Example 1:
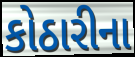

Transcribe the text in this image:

કોઠારીના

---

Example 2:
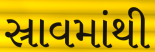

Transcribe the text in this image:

સ્રાવમાંથી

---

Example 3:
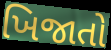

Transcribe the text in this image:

ખિજાતો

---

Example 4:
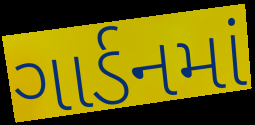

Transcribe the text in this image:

ગાર્ડનમાં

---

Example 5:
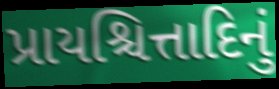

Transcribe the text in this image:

પ્રાયશ્ચિત્તાદિનું